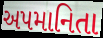
અપમાનિતા